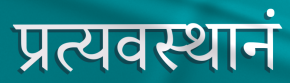
प्रत्यवस्थानं